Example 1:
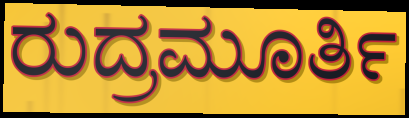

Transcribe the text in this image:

ರುದ್ರಮೂರ್ತಿ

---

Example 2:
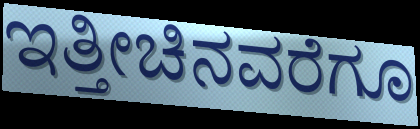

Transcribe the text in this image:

ಇತ್ತೀಚಿನವರೆಗೂ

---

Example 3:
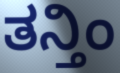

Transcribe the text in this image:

ತನ್ತಿಂ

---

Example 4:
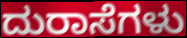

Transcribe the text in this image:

ದುರಾಸೆಗಳು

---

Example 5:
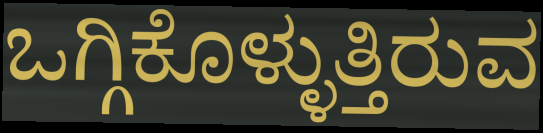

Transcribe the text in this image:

ಒಗ್ಗಿಕೊಳ್ಳುತ್ತಿರುವ